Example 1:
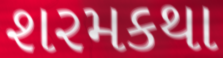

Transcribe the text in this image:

શરમકથા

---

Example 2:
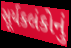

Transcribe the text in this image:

સૂર્યકલંકોનું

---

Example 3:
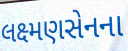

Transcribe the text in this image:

લક્ષ્મણસેનના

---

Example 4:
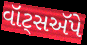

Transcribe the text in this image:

વૉટ્સઍપે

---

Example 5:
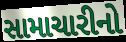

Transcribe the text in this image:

સામાચારીનો